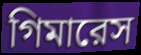
গিমারেস